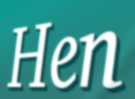
Hen